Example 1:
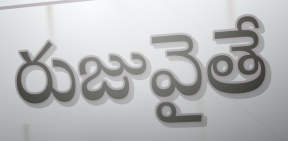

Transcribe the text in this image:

రుజువైతే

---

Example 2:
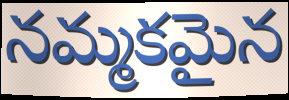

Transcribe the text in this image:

నమ్మకమైన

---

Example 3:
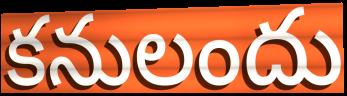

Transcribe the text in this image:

కనులందు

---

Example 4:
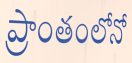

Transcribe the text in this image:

ప్రాంతంలోనో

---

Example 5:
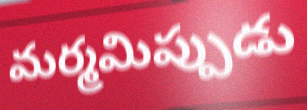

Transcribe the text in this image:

మర్మమిప్పుడు